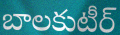
బాలకుటీర్